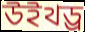
উইথড্র